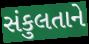
સંકુલતાને